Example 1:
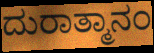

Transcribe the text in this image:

ದುರಾತ್ಮಾನಂ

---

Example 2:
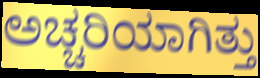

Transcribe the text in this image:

ಅಚ್ಚರಿಯಾಗಿತ್ತು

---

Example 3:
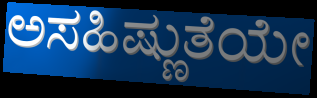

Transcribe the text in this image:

ಅಸಹಿಷ್ಣುತೆಯೇ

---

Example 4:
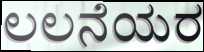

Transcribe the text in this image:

ಲಲನೆಯರ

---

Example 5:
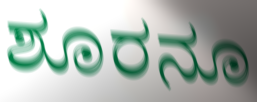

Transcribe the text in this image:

ಶೂರನೂ